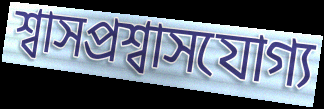
শ্বাসপ্রশ্বাসযোগ্য